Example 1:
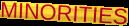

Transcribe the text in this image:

MINORITIES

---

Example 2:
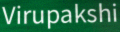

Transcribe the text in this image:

Virupakshi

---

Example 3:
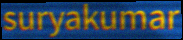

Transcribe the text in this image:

suryakumar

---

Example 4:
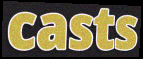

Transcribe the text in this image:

casts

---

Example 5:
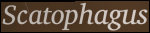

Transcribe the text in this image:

Scatophagus